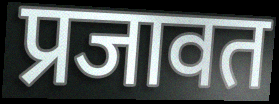
प्रजावत